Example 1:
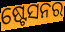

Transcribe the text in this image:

ଷ୍ଟେସନର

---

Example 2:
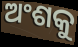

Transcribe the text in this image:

ଅଂଶକୁ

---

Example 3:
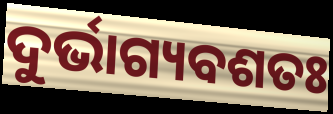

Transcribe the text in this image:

ଦୁର୍ଭାଗ୍ୟବଶତଃ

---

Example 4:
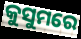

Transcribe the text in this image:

କୁସୁମରେ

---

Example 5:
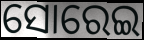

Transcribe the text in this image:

ସୋରେଇ